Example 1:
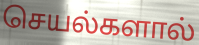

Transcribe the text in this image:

செயல்களால்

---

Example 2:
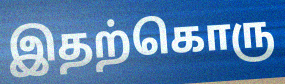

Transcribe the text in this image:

இதற்கொரு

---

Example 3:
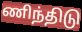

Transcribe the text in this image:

ணிந்திடு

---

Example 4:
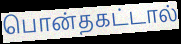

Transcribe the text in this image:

பொன்தகட்டால்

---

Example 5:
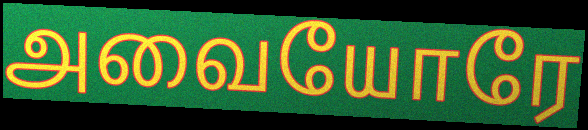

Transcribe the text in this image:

அவையோரே